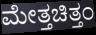
ಮೇತ್ತಚಿತ್ತಂ